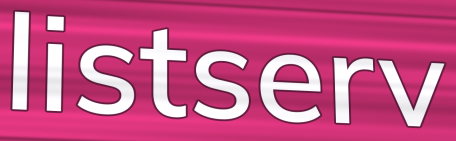
listserv